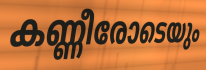
കണ്ണീരോടെയും